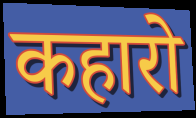
कहारो